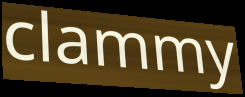
clammy